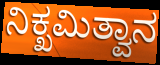
ನಿಕ್ಖಮಿತ್ವಾನ